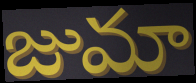
జుమా